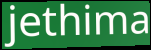
jethima